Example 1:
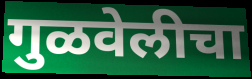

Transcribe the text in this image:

गुळवेलीचा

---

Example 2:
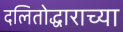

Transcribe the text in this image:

दलितोद्धाराच्या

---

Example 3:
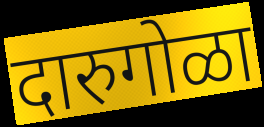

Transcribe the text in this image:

दारुगोळा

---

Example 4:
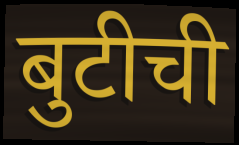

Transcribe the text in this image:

बुटीची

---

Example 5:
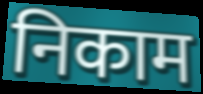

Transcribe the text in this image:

निकाम